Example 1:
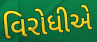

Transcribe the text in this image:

વિરોધીએ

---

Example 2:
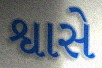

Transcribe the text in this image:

શ્વાસે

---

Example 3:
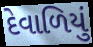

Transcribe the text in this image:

દેવાળિયું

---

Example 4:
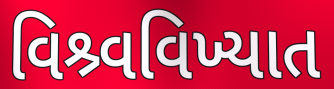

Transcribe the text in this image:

વિશ્ર્વવિખ્યાત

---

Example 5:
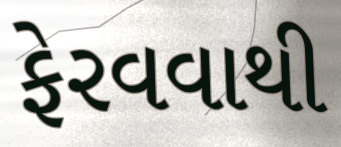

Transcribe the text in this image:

ફેરવવાથી